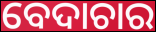
ବେଦାଚାର